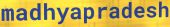
madhyapradesh